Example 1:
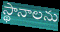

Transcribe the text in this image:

స్థానాలను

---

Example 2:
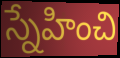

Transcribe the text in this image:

స్నేహించి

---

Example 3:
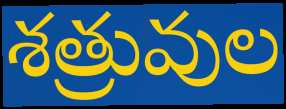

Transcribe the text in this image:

శత్రువుల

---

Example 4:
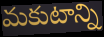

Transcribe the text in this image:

మకుటాన్ని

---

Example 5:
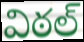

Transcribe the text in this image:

విఠల్